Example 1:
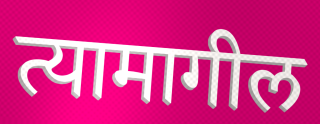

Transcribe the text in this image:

त्यामागील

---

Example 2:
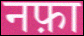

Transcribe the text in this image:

नफ़ा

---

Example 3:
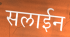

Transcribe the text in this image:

सलाईन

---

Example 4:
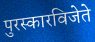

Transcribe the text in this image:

पुरस्कारविजेते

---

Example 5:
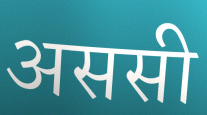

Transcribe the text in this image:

अससी